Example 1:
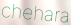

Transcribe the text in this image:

chehara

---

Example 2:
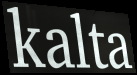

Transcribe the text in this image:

kalta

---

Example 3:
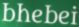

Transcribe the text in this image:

bhebei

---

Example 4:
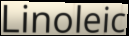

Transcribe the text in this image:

Linoleic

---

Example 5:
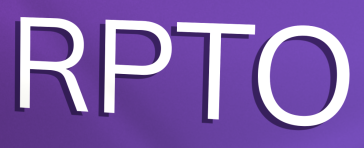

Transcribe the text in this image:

RPTO